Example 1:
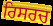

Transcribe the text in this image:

ਰਿਸਰਚ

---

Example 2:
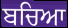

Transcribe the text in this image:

ਬਚਿਆ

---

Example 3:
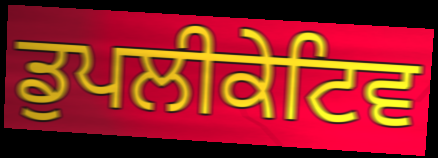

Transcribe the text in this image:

ਡੁਪਲੀਕੇਟਿਵ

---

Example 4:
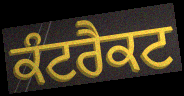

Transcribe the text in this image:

ਕੰਟਰੈਕਟ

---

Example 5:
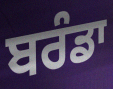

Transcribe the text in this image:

ਬਰੰਡਾ